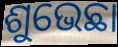
ଶୁଭେଛା